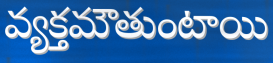
వ్యక్తమౌతుంటాయి